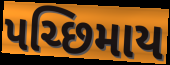
પચ્છિમાય